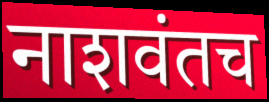
नाशवंतच